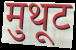
मुथूट